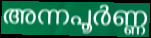
അന്നപൂർണ്ണ